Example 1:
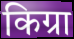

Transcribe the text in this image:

किग्रा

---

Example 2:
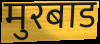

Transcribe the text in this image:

मुरबाड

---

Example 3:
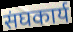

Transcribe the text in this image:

संघकार्य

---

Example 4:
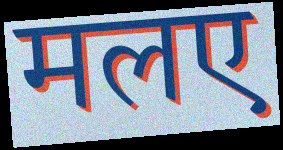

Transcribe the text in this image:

मलए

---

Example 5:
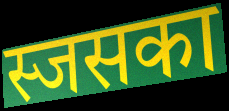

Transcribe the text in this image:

स्जसका